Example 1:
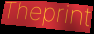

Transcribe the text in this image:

Theprint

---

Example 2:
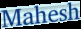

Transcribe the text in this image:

Mahesh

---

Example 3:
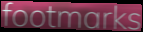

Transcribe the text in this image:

footmarks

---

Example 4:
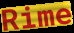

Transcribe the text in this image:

Rime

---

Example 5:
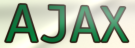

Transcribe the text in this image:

AJAX